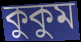
কুকুম